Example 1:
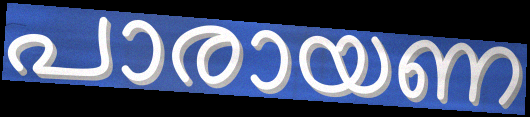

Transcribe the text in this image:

പാരായണ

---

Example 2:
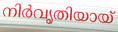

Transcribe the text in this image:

നിർവൃതിയായ്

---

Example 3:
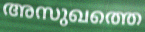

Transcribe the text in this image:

അസുഖത്തെ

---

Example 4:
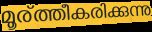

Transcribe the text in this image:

മൂര്ത്തീകരിക്കുന്നു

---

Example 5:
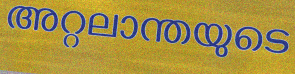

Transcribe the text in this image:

അറ്റലാന്തയുടെ